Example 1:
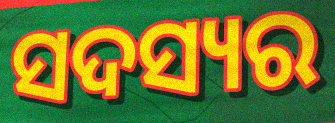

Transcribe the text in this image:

ସଦସ୍ୟର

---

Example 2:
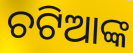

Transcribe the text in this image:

ଚଟିଆଙ୍କ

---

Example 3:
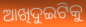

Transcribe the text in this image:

ଆଖିଦୁଇଟିକୁ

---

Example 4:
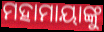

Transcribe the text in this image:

ମହାମାୟାଙ୍କୁ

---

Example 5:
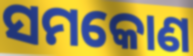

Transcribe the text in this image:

ସମକୋଣ